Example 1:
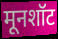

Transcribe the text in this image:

मूनशॉट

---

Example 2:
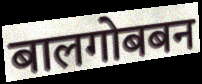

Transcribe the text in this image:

बालगोबबन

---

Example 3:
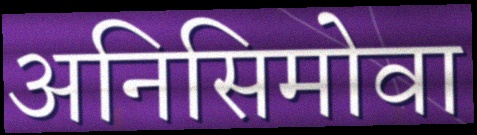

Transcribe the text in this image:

अनिसिमोवा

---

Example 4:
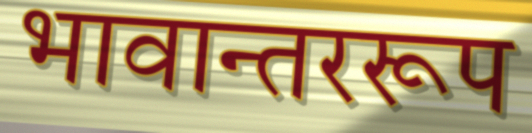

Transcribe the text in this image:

भावान्तररूप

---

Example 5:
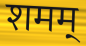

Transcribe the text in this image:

शमम्